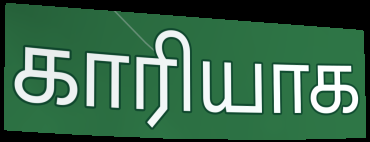
காரியாக